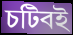
চটিবই